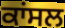
ਕਾਂਸਲ